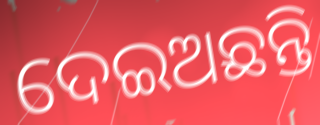
ଦେଇଅଛନ୍ତି